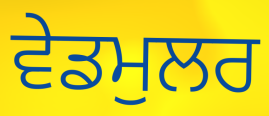
ਵੇਡਮੁਲਰ